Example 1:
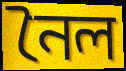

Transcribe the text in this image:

নৈল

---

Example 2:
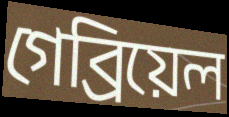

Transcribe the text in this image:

গেব্রিয়েল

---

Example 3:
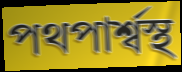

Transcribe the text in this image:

পথপার্শ্বস্থ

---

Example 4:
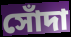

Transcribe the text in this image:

সোঁদা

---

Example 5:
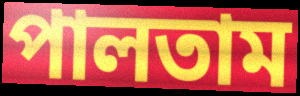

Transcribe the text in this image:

পালতাম